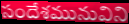
సందేశమునువిని